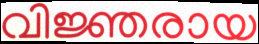
വിജ്ഞരായ